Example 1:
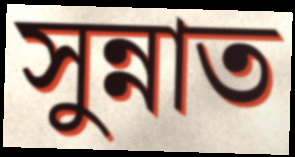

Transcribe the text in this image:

সুন্নাত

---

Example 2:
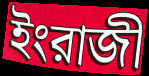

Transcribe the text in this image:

ইংরাজী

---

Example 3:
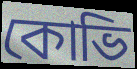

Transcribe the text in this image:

কোভি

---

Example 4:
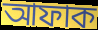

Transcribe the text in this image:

আফাক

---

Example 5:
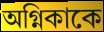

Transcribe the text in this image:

অগ্নিকাকে